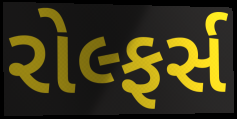
રોલ્ફર્સ